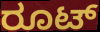
ರೂಟ್